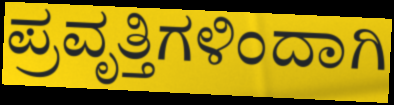
ಪ್ರವೃತ್ತಿಗಳಿಂದಾಗಿ